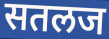
सतलज